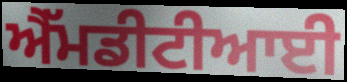
ਐੱਮਡੀਟੀਆਈ